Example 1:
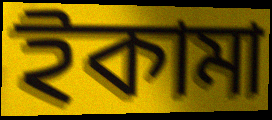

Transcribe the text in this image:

ইকামা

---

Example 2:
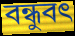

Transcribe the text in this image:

বন্ধুবৎ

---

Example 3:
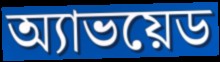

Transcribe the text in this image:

অ্যাভয়েড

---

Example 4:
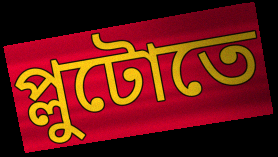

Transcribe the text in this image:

প্লুটোতে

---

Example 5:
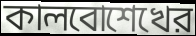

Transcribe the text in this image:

কালবোশেখের